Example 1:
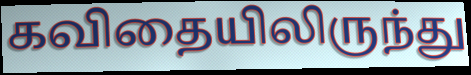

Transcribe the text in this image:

கவிதையிலிருந்து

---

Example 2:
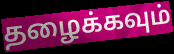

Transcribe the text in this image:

தழைக்கவும்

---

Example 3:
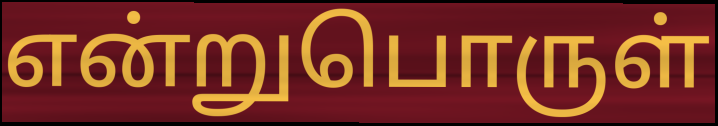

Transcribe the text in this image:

என்றுபொருள்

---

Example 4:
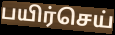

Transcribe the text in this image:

பயிர்செய்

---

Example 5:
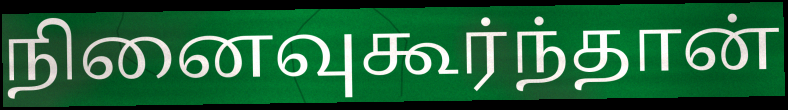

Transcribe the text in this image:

நினைவுகூர்ந்தான்